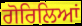
ਗੋਰਿਲਿਆਂ